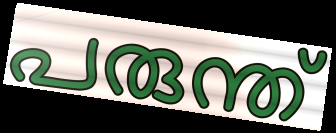
പരുന്ത്